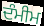
ਦੰਮੀਮ